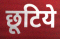
छूटिये